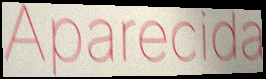
Aparecida